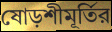
ষোড়শীমূর্তির